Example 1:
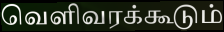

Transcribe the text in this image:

வெளிவரக்கூடும்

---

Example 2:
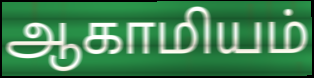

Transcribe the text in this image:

ஆகாமியம்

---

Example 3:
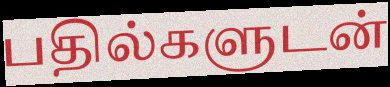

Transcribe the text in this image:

பதில்களுடன்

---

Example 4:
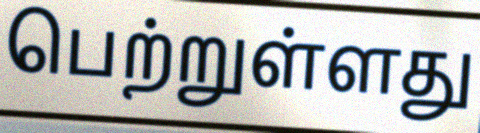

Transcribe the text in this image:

பெற்றுள்ளது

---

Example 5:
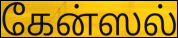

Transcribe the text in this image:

கேன்ஸல்